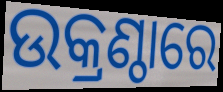
ଉକ୍ରଣ୍ଠାରେ